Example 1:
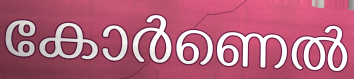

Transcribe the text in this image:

കോർണെൽ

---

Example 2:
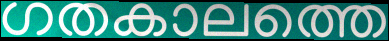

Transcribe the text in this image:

ഗതകാലത്തെ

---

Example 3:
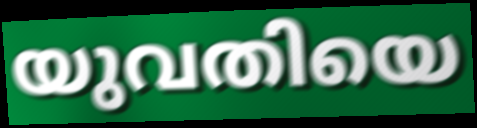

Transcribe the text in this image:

യുവതിയെ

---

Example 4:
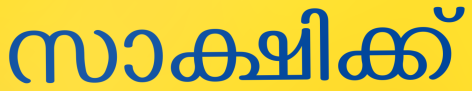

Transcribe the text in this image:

സാക്ഷിക്ക്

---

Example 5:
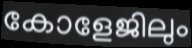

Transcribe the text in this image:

കോളേജിലും